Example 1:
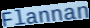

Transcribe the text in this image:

Flannan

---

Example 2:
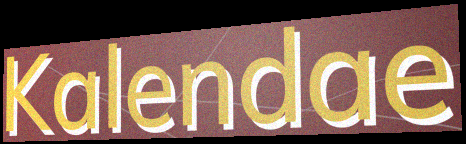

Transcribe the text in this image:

Kalendae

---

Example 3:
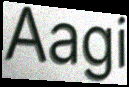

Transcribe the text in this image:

Aagi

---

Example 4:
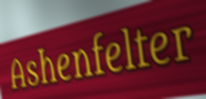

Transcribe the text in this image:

Ashenfelter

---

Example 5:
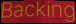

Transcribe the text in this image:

Backing